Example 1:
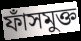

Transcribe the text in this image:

ফাঁসমুক্ত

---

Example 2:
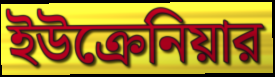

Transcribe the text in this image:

ইউক্রেনিয়ার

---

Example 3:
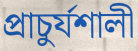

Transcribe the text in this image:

প্রাচুর্যশালী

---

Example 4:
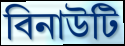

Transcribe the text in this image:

বিনাউটি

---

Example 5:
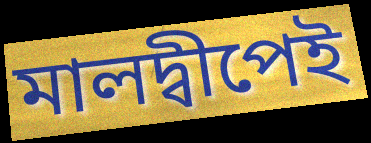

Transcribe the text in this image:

মালদ্বীপেই